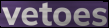
vetoes